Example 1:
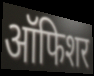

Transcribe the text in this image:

ऑफिशर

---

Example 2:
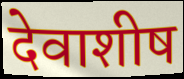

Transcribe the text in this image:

देवाशीष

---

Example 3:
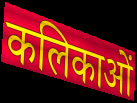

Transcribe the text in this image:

कलिकाओं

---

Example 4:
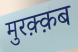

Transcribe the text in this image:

मुरक़्क़ब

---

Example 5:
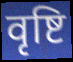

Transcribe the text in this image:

वृष्टि